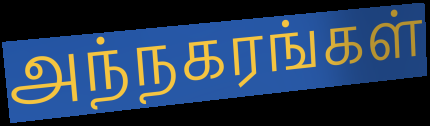
அந்நகரங்கள்